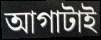
আগাটাই